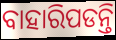
ବାହାରିପଡନ୍ତି